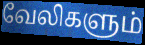
வேலிகளும்